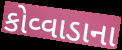
કોવ્વાડાના